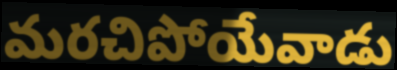
మరచిపోయేవాడు